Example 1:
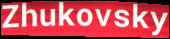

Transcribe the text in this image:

Zhukovsky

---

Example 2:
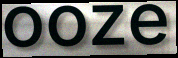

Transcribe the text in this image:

ooze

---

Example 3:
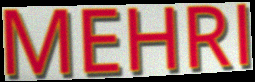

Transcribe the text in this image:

MEHRI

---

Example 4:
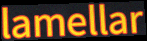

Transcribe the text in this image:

lamellar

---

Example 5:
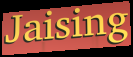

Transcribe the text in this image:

Jaising